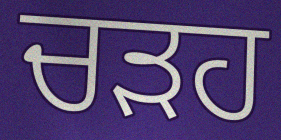
ਚੜਹ